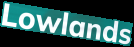
Lowlands